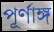
পূৰ্ণাঙ্গ